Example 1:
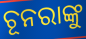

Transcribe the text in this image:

ଚୂନରାଙ୍କୁ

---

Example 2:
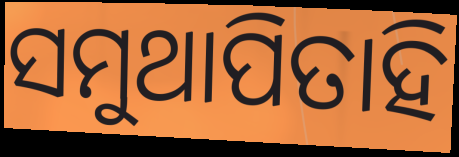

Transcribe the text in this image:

ସମୁଥାପିତାହି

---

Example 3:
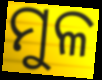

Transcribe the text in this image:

ମୁଳ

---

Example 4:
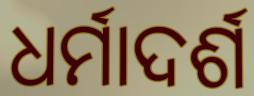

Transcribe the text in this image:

ଧର୍ମାଦର୍ଶ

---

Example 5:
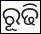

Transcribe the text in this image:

ରୂଢି